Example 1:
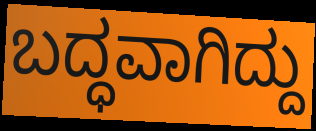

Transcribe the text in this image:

ಬದ್ಧವಾಗಿದ್ದು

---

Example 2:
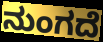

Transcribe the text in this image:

ನುಂಗದೆ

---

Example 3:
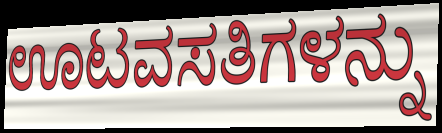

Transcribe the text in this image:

ಊಟವಸತಿಗಳನ್ನು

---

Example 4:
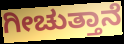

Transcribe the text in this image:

ಗೀಚುತ್ತಾನೆ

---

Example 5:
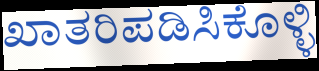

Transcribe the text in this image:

ಖಾತರಿಪಡಿಸಿಕೊಳ್ಳಿ